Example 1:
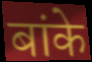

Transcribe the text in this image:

बांके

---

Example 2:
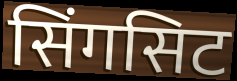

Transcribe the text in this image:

सिंगसिट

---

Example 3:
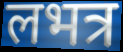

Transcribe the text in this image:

लभत्र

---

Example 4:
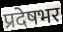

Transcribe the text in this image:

प्रदेषभर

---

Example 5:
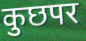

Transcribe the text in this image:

कुछपर